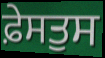
ਫ਼ੇਸਤੁਸ